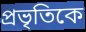
প্রভৃতিকে